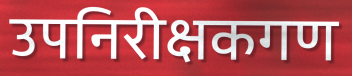
उपनिरीक्षकगण